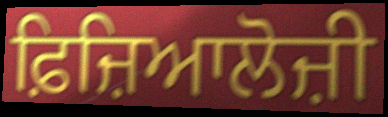
ਫ਼ਿਜ਼ਿਆਲੋਜ਼ੀ